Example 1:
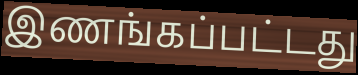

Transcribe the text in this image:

இணங்கப்பட்டது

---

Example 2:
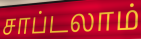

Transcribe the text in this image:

சாப்டலாம்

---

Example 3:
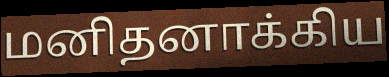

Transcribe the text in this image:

மனிதனாக்கிய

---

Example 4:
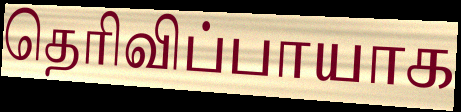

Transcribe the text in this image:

தெரிவிப்பாயாக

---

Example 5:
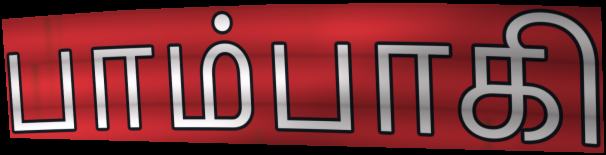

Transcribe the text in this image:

பாம்பாகி